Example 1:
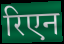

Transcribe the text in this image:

रिएन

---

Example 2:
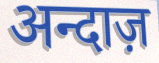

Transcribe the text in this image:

अन्दाज़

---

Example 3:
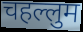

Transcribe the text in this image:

चहल्लुम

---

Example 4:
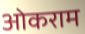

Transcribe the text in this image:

ओकराम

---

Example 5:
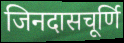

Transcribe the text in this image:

जिनदासचूर्णि